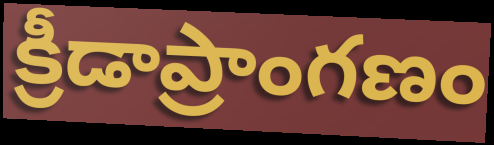
క్రీడాప్రాంగణం